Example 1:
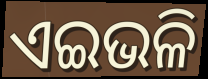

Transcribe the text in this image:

ଏଇଭଳି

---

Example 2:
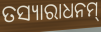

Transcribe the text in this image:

ତସ୍ୟାରାଧନମ୍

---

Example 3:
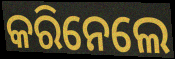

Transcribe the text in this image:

କରିନେଲେ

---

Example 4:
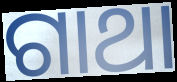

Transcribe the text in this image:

ଗାଥା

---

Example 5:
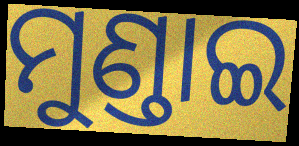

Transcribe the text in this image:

ମୁଣ୍ଡାଇ